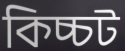
কিচ্চট